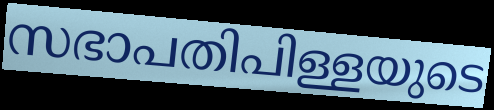
സഭാപതിപിള്ളയുടെ